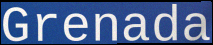
Grenada